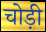
चोड़ी